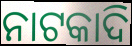
ନାଟକାଦି